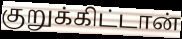
குறுக்கிட்டான்